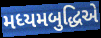
મધ્યમબુદ્ધિએ